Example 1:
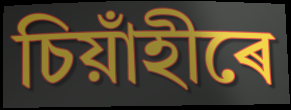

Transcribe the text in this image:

চিয়াঁহীৰে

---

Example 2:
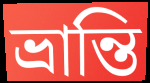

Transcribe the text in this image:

ভ্ৰান্তি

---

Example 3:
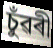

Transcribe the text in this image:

চুঁৱৰী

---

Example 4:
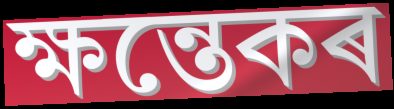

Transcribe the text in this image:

ক্ষন্তেকৰ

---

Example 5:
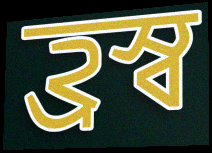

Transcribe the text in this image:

হ্ৰস্ব